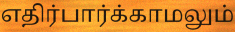
எதிர்பார்க்காமலும்